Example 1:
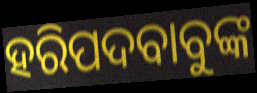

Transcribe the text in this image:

ହରିପଦବାବୁଙ୍କ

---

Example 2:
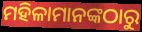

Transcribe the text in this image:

ମହିଳାମାନଙ୍କଠାରୁ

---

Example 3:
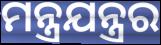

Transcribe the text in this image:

ମନ୍ତ୍ରଯନ୍ତ୍ରର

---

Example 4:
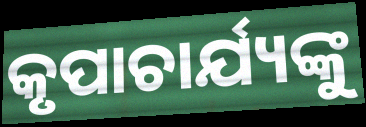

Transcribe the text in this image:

କୃପାଚାର୍ଯ୍ୟଙ୍କୁ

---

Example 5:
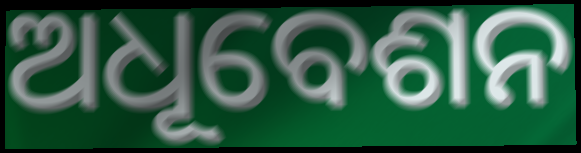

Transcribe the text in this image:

ଅଧୂବେଶନ